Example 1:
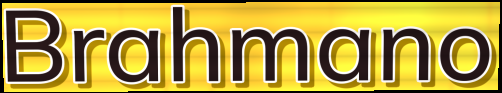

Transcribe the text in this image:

Brahmano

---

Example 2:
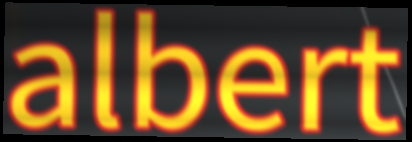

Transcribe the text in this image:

albert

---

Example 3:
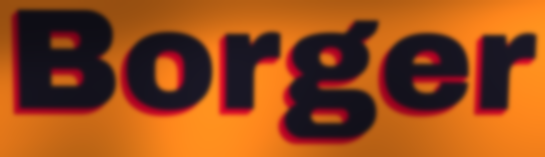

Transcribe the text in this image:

Borger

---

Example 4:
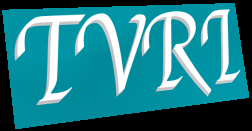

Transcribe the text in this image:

TVRI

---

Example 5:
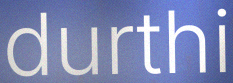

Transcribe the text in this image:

durthi